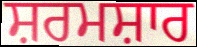
ਸ਼ਰਮਸ਼ਾਰ